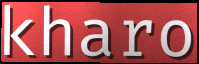
kharo